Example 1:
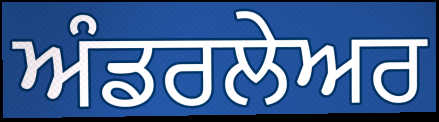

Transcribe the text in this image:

ਅੰਡਰਲੇਅਰ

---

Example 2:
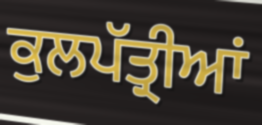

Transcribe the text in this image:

ਕੁਲਪੱਤ੍ਰੀਆਂ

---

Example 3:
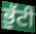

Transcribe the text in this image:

ਭੁੱਟੀ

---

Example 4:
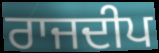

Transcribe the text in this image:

ਰਾਜਦੀਪ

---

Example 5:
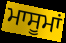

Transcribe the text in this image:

ਮਾਸੂਮਾਂ